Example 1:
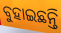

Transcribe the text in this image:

ବୁହାଇଛନ୍ତି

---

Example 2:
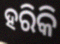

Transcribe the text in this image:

ହରିକି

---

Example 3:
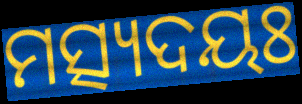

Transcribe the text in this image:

ମତ୍ସ୍ୟଦୟଃ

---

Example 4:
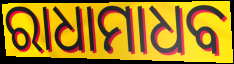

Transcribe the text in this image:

ରାଧାମାଧବ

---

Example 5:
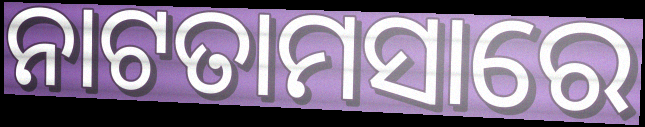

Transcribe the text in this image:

ନାଟତାମସାରେ